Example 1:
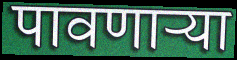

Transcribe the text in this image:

पावणाऱ्या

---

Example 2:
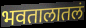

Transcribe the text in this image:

भवतालातलं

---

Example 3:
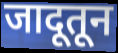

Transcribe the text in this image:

जादूतून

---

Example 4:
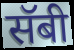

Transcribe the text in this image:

सॅबी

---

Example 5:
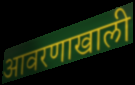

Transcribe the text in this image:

आवरणाखाली